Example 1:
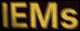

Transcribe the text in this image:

IEMs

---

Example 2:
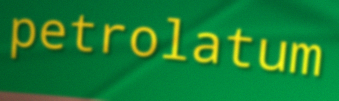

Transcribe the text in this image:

petrolatum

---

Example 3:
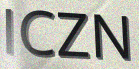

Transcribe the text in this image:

ICZN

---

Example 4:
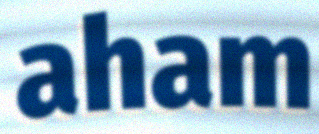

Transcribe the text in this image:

aham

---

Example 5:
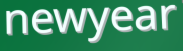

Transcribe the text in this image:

newyear